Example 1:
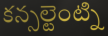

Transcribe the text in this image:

కన్సల్టెంట్ని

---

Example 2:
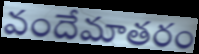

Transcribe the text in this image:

వందేమాతరం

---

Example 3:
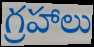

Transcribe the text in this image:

గ్రహాలు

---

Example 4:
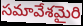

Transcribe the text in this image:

సమావేశమైరి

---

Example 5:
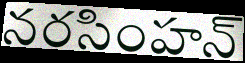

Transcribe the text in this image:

నరసింహన్